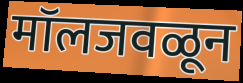
मॉलजवळून